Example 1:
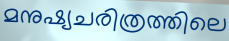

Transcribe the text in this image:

മനുഷ്യചരിത്രത്തിലെ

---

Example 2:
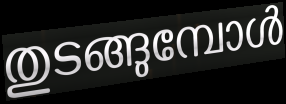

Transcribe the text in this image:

തുടങ്ങുമ്പോൾ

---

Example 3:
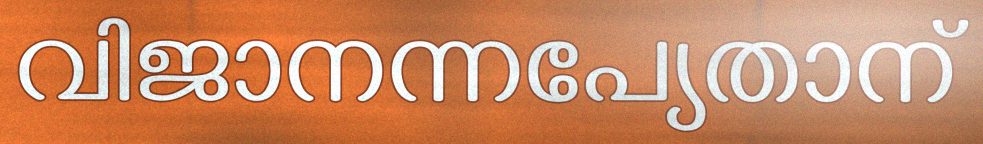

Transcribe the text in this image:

വിജാനന്നപ്യേതാന്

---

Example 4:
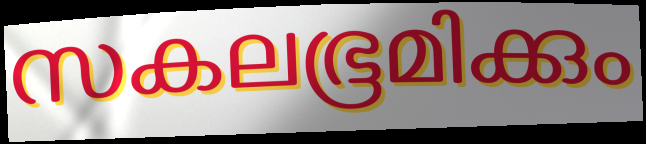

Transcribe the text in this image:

സകലഭൂമിക്കും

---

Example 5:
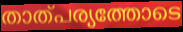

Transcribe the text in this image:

താത്പര്യത്തോടെ